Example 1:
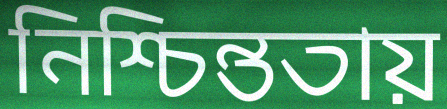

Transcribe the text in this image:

নিশ্চিন্ততায়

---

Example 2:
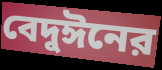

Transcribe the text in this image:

বেদুঈনের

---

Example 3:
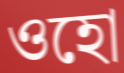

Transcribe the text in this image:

ওহো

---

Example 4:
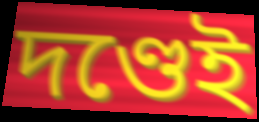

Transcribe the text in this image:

দণ্ডেই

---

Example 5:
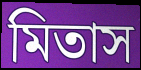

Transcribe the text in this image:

মিতাস